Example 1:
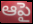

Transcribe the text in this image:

ఆపై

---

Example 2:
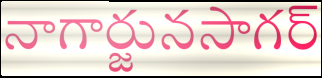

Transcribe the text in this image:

నాగార్జునసాగర్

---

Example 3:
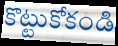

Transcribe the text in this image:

కొట్టుకోకండి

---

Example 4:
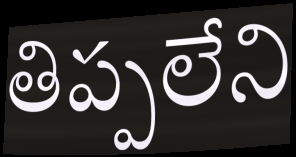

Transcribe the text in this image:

తిప్పలేని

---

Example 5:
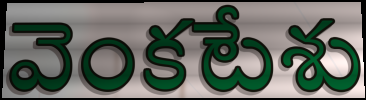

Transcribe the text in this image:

వెంకటేశు